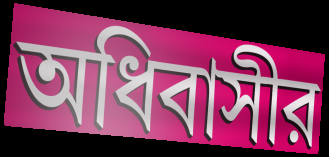
অধিবাসীর